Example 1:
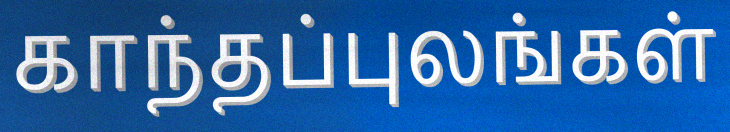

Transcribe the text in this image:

காந்தப்புலங்கள்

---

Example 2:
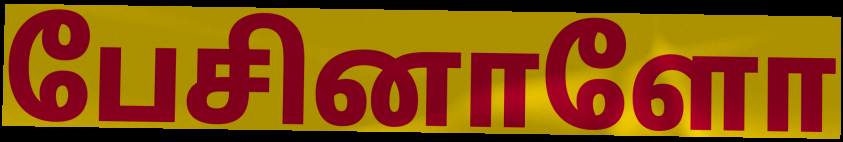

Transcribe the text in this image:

பேசினாளோ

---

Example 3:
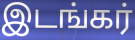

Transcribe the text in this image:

இடங்கர்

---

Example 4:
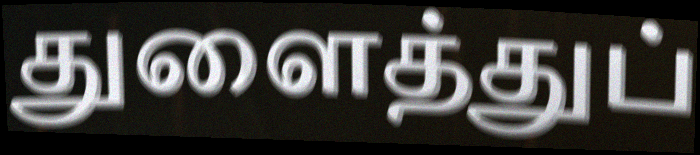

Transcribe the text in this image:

துளைத்துப்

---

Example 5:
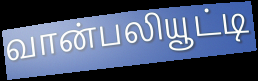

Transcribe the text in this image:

வான்பலியூட்டி